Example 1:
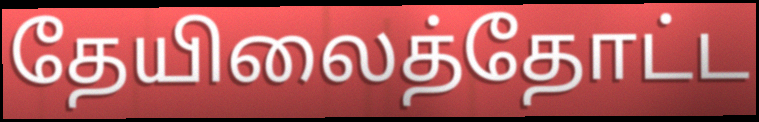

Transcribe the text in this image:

தேயிலைத்தோட்ட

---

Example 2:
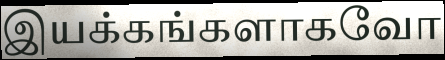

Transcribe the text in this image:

இயக்கங்களாகவோ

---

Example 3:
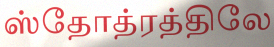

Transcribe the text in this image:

ஸ்தோத்ரத்திலே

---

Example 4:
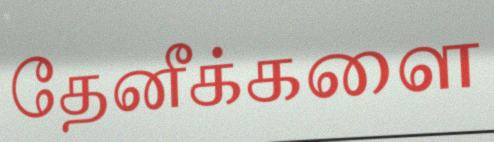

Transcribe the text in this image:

தேனீக்களை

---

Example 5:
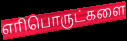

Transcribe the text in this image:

எரிபொருட்களை